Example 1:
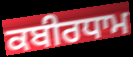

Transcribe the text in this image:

ਕਬੀਰਧਾਮ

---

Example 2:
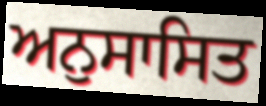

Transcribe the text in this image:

ਅਨੁਸਾਸਿਤ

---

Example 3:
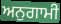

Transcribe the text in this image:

ਅਨੁਗਾਮੀ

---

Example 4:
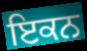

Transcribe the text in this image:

ਇਕਨ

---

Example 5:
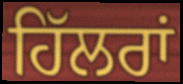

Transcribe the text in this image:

ਹਿੱਲਰਾਂ